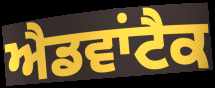
ਐਡਵਾਂਟੈਕ